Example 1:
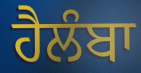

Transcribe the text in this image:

ਹੈਲੰਬਾ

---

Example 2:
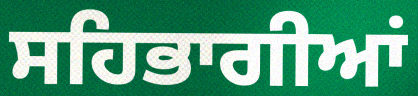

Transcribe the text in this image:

ਸਹਿਭਾਗੀਆਂ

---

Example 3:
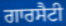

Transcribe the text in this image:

ਗਾਰਸੈਟੀ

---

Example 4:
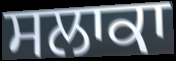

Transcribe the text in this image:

ਸਲਾਕਾ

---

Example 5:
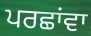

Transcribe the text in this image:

ਪਰਛਾਂਵਾ